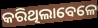
କରିଥିଲାବେଳେ